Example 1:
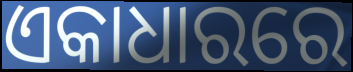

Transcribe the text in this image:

ଏକାଧାରରେ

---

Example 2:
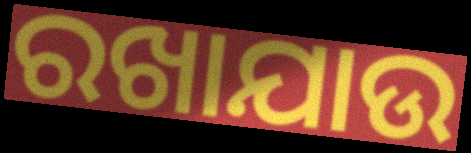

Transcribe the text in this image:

ରଖାଯାଉ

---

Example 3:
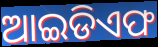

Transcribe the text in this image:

ଆଇଡିଏଫ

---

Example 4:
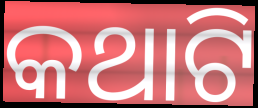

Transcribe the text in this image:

କଥାଟି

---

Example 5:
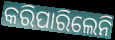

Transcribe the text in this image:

କରିପାରିଲେନି